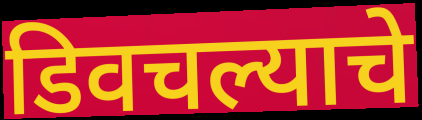
डिवचल्याचे